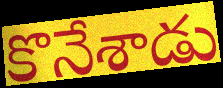
కొనేశాడు